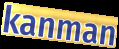
kanman